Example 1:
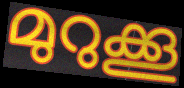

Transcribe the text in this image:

മുറുക്കൂ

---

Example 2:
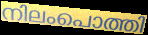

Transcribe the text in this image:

നിലംപൊത്തി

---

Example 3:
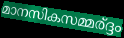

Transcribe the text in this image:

മാനസികസമ്മര്ദ്ദം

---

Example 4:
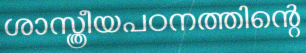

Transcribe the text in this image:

ശാസ്ത്രീയപഠനത്തിന്റെ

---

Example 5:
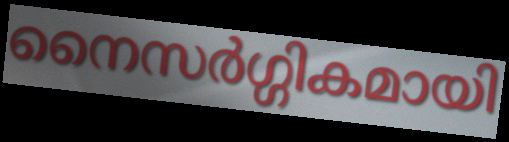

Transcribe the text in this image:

നൈസർഗ്ഗികമായി